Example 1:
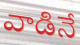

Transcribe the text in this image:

వాడినే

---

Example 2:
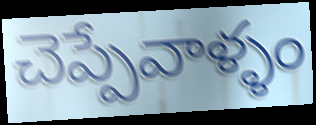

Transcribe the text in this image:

చెప్పేవాళ్ళం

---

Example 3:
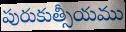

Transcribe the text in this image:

పురుకుత్సీయము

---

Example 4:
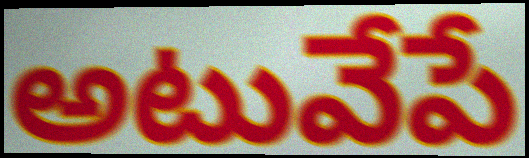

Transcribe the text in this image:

అటువేపే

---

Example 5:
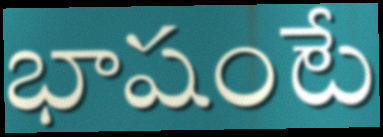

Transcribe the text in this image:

భాషంటే